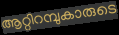
ആറ്റിറമ്പുകാരുടെ